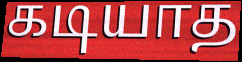
கடியாத